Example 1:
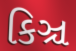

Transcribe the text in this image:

કિઞ્ચ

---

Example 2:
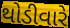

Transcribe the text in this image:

થોડીવારે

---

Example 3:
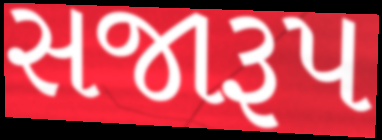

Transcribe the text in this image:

સજારૂપ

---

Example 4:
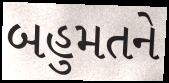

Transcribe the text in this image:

બહુમતને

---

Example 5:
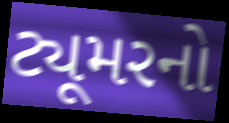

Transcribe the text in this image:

ટ્યૂમરનો